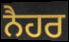
ਨੈਹਰ